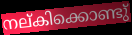
നല്കിക്കൊണ്ടു്